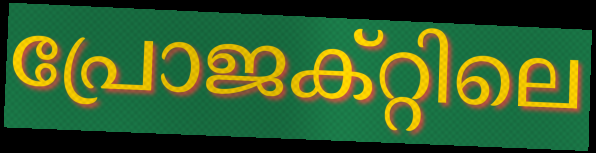
പ്രോജക്റ്റിലെ